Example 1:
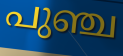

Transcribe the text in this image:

പുഞ്ച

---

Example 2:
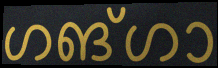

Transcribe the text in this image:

ഗങ്ഗാ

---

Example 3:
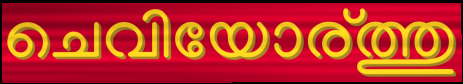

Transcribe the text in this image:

ചെവിയോര്ത്തു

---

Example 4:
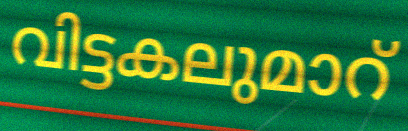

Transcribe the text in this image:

വിട്ടകലുമാറ്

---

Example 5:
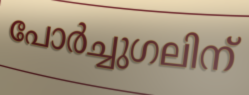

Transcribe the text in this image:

പോർച്ചുഗലിന്